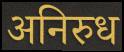
अनिरुध